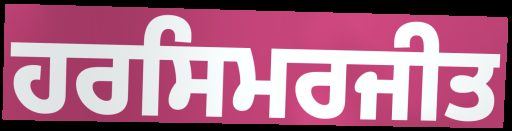
ਹਰਸਿਮਰਜੀਤ